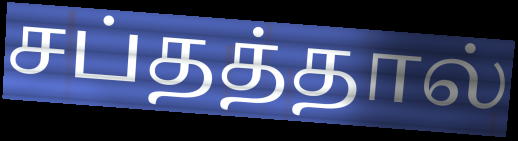
சப்தத்தால்